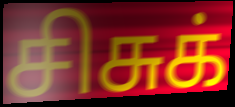
சிசுக்